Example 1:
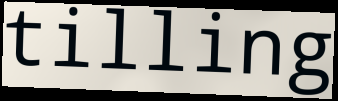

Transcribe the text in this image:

tilling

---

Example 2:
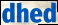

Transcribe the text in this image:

dhed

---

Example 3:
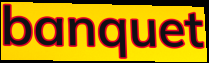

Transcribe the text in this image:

banquet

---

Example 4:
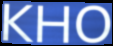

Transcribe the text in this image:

KHO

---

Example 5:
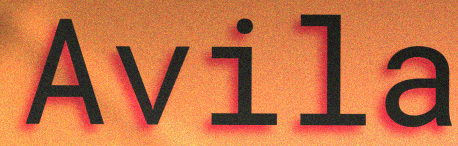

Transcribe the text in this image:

Avila